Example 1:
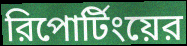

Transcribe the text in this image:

রিপোর্টিংয়ের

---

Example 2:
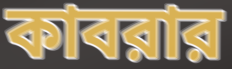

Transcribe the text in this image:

কাবরার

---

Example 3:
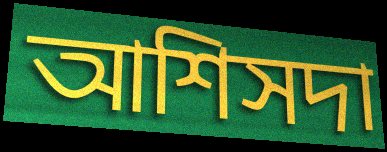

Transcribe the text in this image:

আশিসদা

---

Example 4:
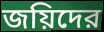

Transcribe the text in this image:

জয়িদের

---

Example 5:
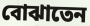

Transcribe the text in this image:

বোঝাতেন